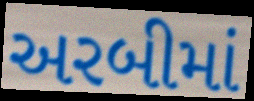
અરબીમાં